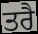
ਤਰੈ